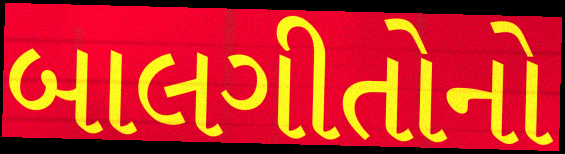
બાલગીતોનો